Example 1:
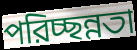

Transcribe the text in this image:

পরিচ্ছন্নতা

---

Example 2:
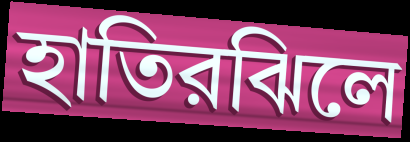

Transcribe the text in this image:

হাতিরঝিলে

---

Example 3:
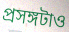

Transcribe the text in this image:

প্রসঙ্গটাও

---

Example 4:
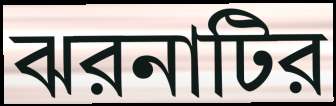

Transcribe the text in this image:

ঝরনাটির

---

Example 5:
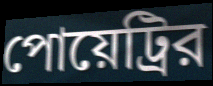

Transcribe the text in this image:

পোয়েট্রির